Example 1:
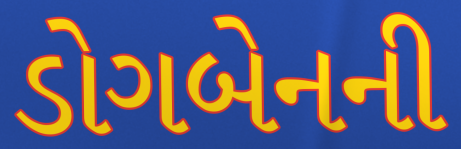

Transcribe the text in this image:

ડોગબેનની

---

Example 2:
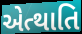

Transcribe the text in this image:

એત્થાતિ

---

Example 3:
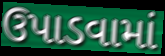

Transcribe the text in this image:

ઉપાડવામાં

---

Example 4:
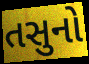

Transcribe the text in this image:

તસુનો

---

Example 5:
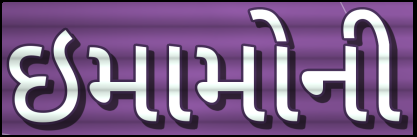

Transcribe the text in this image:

ઇમામોની